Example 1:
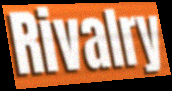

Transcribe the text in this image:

Rivalry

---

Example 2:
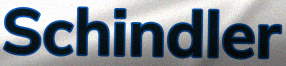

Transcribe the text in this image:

Schindler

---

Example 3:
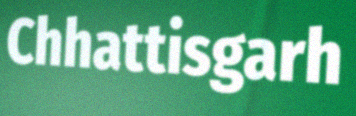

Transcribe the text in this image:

Chhattisgarh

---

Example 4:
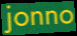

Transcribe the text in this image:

jonno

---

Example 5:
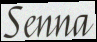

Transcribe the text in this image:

Senna